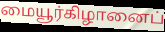
மையூர்கிழானைப்